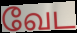
வேட